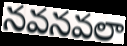
నవనవలా